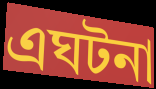
এঘটনা